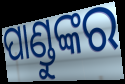
ପାଣ୍ଡୁଙ୍କର